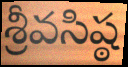
శ్రీవసిష్ఠ